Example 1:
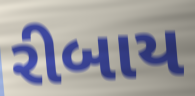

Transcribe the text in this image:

રીબાય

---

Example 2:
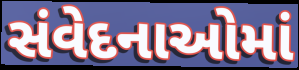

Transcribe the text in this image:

સંવેદનાઓમાં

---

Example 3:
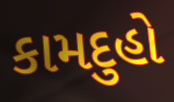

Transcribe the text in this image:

કામદુહો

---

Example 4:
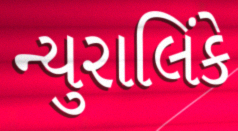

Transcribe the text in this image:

ન્યુરાલિંકે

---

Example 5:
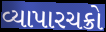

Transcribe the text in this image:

વ્યાપારચક્રો